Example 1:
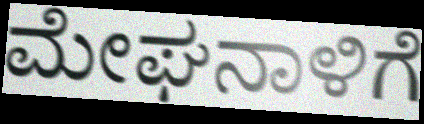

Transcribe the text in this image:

ಮೇಘನಾಳಿಗೆ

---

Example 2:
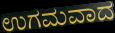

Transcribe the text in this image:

ಉಗಮವಾದ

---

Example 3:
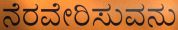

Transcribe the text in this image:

ನೆರವೇರಿಸುವನು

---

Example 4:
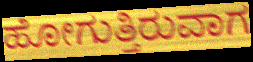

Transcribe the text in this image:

ಹೋಗುತ್ತಿರುವಾಗ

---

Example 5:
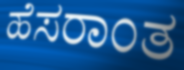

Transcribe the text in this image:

ಹೆಸರಾಂತ